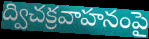
ద్విచక్రవాహనంపై